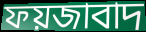
ফয়জাবাদ